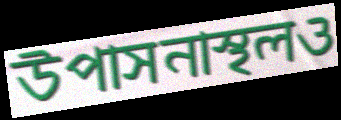
উপাসনাস্থলও